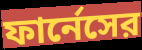
ফার্নেসের